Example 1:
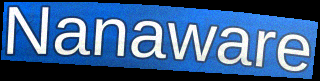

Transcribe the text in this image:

Nanaware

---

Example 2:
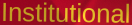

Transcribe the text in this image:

Institutional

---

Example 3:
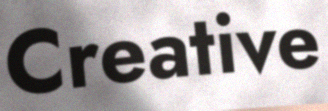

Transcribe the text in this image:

Creative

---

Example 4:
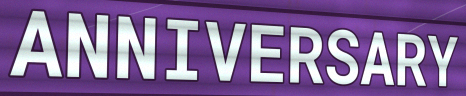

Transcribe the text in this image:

ANNIVERSARY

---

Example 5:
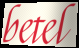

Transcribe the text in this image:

betel